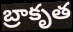
బ్రాకృత